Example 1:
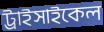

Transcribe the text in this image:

ট্রাইসাইকেল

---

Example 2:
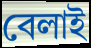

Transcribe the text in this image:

বেলাই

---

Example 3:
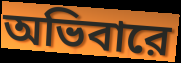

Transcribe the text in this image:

অভিবারে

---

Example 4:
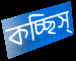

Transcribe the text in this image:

কচ্ছিস্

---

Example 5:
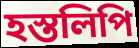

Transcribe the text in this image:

হস্তলিপি